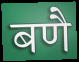
बणै